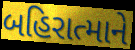
બહિરાત્માને